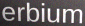
erbium